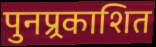
पुनप्र्रकाशित